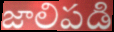
జాలిపడి